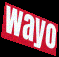
wayo